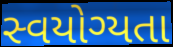
સ્વયોગ્યતા